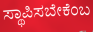
ಸ್ಥಾಪಿಸಬೇಕೆಂಬ